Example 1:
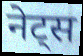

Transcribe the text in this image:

नेट्स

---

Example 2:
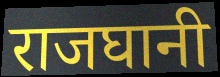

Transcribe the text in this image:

राजघानी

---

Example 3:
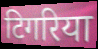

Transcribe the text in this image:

टिगरिया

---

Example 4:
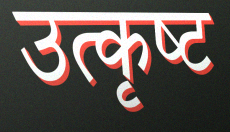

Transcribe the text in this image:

उत्‍कृष्‍ट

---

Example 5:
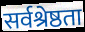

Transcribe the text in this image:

सर्वश्रेष्ठता